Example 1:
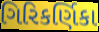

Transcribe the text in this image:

ગિરિકર્ણિકા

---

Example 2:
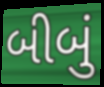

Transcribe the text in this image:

બીબું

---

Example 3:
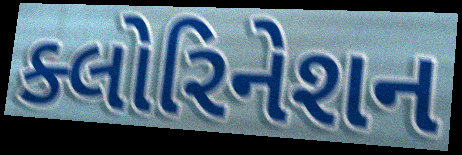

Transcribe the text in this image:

ક્લોરિનેશન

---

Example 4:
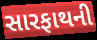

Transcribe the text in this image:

સારફાથની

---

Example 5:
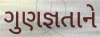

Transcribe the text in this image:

ગુણજ્ઞતાને